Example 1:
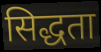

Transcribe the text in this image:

सिद्धता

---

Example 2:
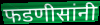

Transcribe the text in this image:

फडणीसांनी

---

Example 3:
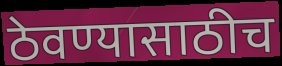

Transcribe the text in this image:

ठेवण्यासाठीच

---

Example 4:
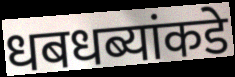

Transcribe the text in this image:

धबधब्यांकडे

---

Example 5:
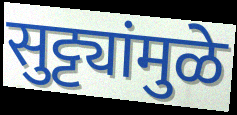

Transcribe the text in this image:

सुट्ट्यांमुळे